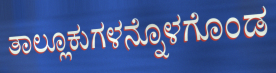
ತಾಲ್ಲೂಕುಗಳನ್ನೊಳಗೊಂಡ